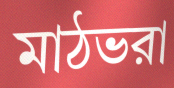
মাঠভরা